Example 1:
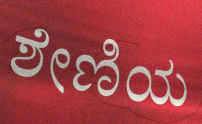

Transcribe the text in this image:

ಶೇಣಿಯ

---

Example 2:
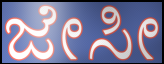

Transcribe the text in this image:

ಜೇಸೀ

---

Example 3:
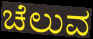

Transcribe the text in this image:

ಚೆಲುವ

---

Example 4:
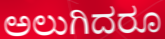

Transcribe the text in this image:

ಅಲುಗಿದರೂ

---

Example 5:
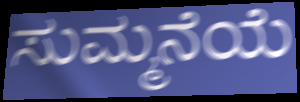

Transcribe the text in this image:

ಸುಮ್ಮನೆಯೆ